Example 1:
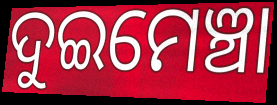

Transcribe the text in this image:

ଦୁଇମେଞ୍ଚା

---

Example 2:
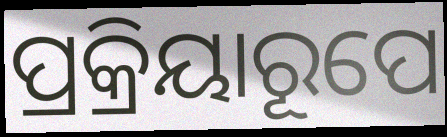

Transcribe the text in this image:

ପ୍ରକ୍ରିୟାରୂପେ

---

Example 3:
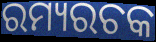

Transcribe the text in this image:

ରମ୍ୟରଚକ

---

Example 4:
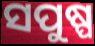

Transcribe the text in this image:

ସପୁଷ୍ପ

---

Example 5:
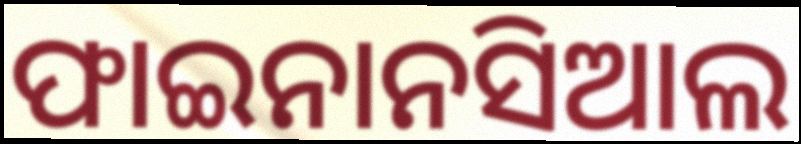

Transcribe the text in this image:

ଫାଇନାନସିଆଲ